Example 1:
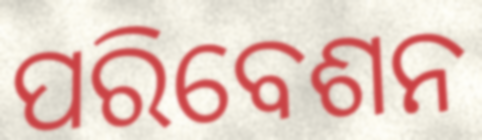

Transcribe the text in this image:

ପରିବେଶନ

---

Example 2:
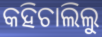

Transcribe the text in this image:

କହିଚାଲିଲୁ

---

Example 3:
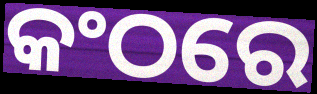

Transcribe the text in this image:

କଂଠରେ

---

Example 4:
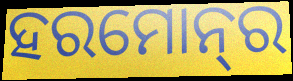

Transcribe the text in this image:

ହରମୋନ୍‍ର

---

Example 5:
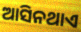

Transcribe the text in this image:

ଆସିନଥାଏ